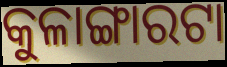
କୁଳାଙ୍ଗାରଟା